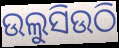
ଉଲୁସିଉଠି